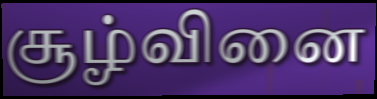
சூழ்வினை